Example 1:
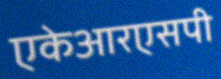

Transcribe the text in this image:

एकेआरएसपी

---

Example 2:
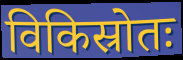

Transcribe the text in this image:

विकिस्रोतः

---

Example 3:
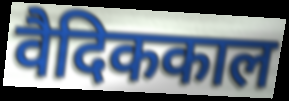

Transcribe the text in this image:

वैदिककाल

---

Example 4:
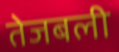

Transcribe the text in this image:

तेजबली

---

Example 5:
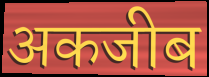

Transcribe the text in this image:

अकजीब